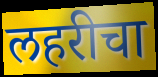
लहरीचा